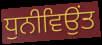
ਧੁਨੀਵਿਉਂਤ